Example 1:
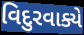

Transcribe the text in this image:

વિદુરવાક્યે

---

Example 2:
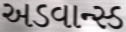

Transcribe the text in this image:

અડવાન્સ્ડ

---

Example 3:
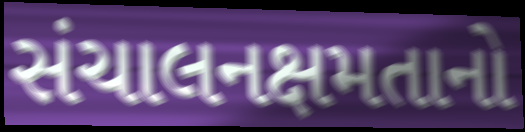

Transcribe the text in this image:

સંચાલનક્ષમતાનો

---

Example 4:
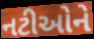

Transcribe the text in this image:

નટીઓને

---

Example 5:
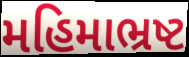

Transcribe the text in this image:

મહિમાભ્રષ્ટ